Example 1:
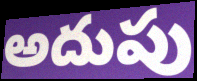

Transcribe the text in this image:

అదుపు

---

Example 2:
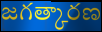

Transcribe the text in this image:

జగత్కారణ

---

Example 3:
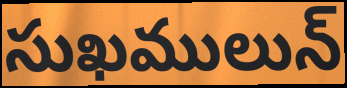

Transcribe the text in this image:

సుఖములున్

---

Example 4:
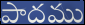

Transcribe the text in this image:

పాదము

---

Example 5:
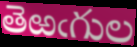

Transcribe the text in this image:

తెఱఁగుల